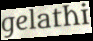
gelathi